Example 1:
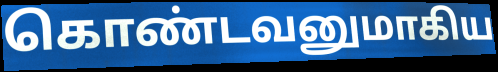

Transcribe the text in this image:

கொண்டவனுமாகிய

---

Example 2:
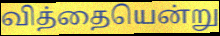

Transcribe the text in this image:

வித்தையென்று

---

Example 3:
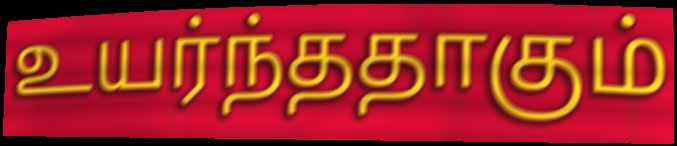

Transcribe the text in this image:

உயர்ந்ததாகும்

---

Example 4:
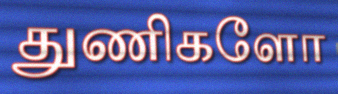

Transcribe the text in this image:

துணிகளோ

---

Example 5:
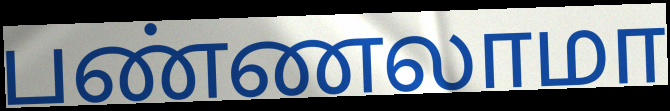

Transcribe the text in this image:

பண்ணலாமா